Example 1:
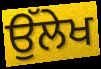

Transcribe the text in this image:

ਉੱਲੇਖ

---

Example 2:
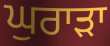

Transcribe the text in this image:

ਘੁਰਾੜਾ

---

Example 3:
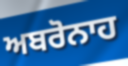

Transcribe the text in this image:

ਅਬਰੋਨਾਹ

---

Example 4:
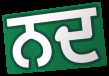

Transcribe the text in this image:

ਨਦ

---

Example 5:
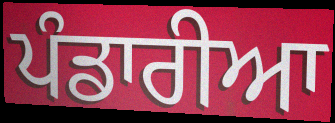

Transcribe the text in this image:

ਪੰਡਾਰੀਆ